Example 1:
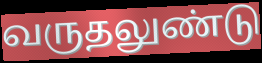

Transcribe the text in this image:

வருதலுண்டு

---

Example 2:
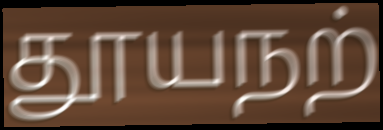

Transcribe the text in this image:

தூயநற்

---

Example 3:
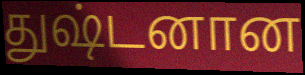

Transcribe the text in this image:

துஷ்டனான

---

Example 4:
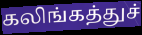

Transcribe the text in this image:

கலிங்கத்துச்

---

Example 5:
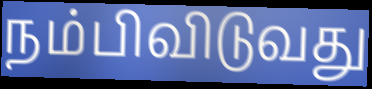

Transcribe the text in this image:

நம்பிவிடுவது